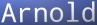
Arnold